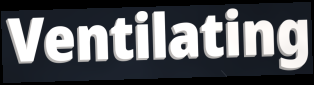
Ventilating